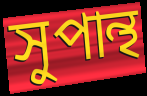
সুপান্থ